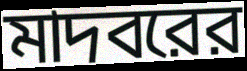
মাদবরের